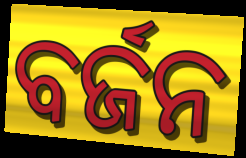
ବର୍ଜନ